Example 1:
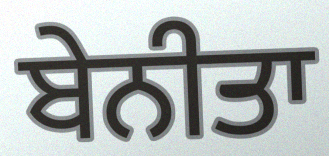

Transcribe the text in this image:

ਬੇਨੀਤਾ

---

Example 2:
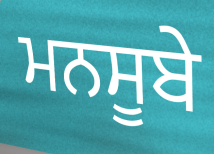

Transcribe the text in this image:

ਮਨਸੂਬੇ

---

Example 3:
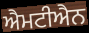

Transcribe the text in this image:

ਐਮਟੀਐਨ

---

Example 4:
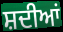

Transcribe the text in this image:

ਸ਼ਦੀਆਂ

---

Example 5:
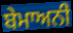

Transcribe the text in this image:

ਬੇਮਾਅਨੀ